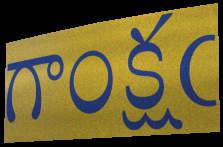
గాంక్షఁ